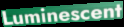
Luminescent